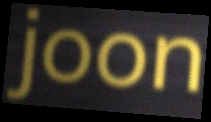
joon